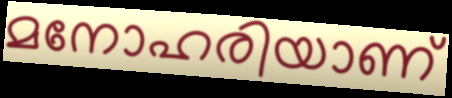
മനോഹരിയാണ്